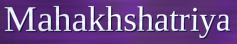
Mahakhshatriya